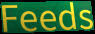
Feeds